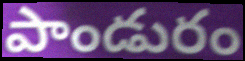
పాండురం